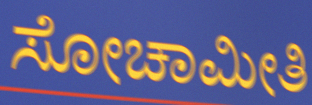
ಸೋಚಾಮೀತಿ